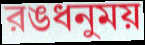
রঙধনুময়